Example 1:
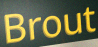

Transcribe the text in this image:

Brout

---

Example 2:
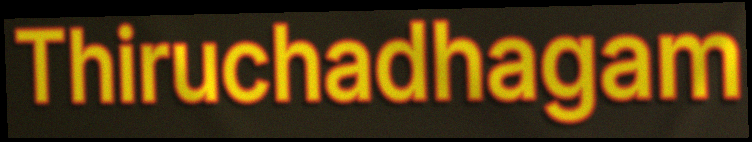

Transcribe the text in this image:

Thiruchadhagam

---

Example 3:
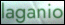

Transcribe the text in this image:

laganio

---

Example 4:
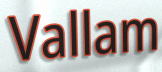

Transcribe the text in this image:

Vallam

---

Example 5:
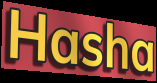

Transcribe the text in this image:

Hasha